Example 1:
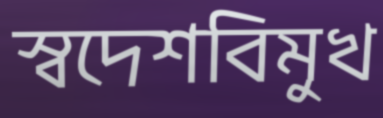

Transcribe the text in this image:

স্বদেশবিমুখ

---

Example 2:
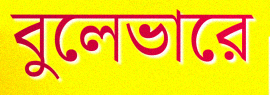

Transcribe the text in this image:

বুলেভারে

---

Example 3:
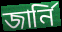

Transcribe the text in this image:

জার্নি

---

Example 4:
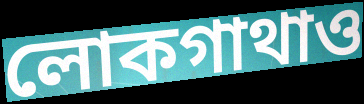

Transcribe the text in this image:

লোকগাথাও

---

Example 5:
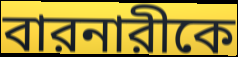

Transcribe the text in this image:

বারনারীকে